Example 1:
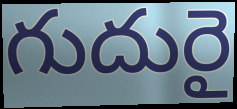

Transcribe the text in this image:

గుదురై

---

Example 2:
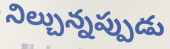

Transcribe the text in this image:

నిల్చున్నప్పుడు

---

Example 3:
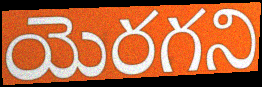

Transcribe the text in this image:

యెరగని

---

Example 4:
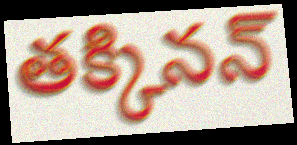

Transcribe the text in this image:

తక్కినన్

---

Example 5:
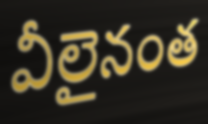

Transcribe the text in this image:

వీలైనంత